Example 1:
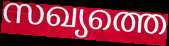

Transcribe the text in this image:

സഖ്യത്തെ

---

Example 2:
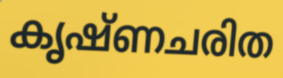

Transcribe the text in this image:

കൃഷ്ണചരിത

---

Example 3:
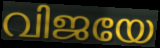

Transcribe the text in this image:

വിജയേ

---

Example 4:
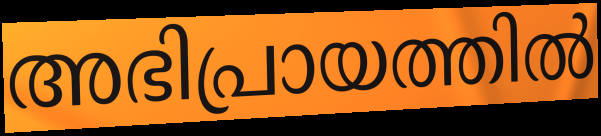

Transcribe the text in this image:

അഭിപ്രായത്തിൽ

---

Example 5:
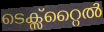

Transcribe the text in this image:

ടെക്സ്റ്റൈൽ